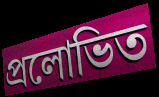
প্ৰলোভিত